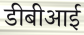
डीबीआई